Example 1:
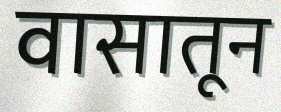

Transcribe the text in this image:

वासातून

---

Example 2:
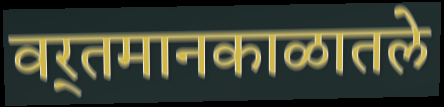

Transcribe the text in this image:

वर्तमानकाळातले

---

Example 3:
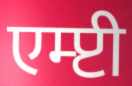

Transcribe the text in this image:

एम्प्टी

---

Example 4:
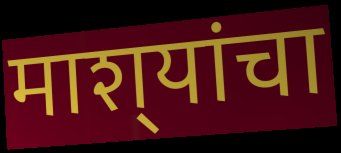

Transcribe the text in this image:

माश्यांचा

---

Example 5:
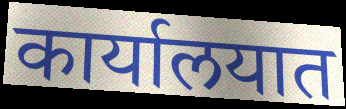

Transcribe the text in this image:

कार्यालयात